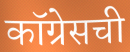
कॉग्रेसची